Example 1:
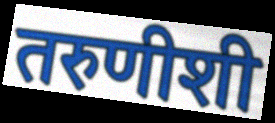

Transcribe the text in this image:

तरुणीशी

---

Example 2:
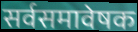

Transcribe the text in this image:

सर्वसमावेषक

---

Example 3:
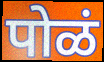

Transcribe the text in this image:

पोळं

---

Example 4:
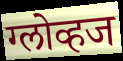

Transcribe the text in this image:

ग्लोव्हज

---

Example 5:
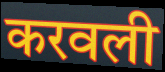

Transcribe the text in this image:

करवली